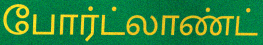
போர்ட்லாண்ட்